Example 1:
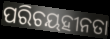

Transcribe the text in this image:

ପରିଚୟହୀନତା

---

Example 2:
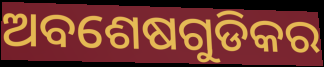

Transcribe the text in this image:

ଅବଶେଷଗୁଡିକର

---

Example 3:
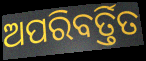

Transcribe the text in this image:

ଅପରିବର୍ତ୍ତିତ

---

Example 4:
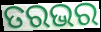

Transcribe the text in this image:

ତରଭର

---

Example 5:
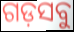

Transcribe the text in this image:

ଗଡ଼ସବୁ